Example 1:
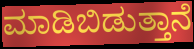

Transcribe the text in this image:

ಮಾಡಿಬಿಡುತ್ತಾನೆ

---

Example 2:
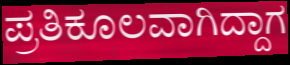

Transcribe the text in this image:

ಪ್ರತಿಕೂಲವಾಗಿದ್ದಾಗ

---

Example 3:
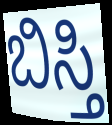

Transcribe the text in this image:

ಬಿಸ್ತಿ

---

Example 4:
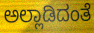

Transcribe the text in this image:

ಅಲ್ಲಾಡಿದಂತೆ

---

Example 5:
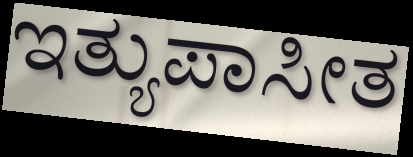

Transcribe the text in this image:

ಇತ್ಯುಪಾಸೀತ